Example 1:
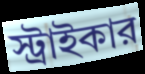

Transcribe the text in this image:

স্ট্রাইকার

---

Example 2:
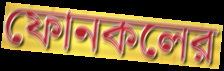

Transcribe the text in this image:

ফোনকলের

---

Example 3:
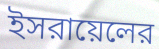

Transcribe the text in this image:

ইসরায়েলের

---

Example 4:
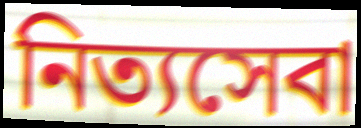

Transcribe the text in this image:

নিত্যসেবা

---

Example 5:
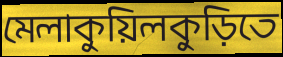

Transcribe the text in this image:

মেলাকুয়িলকুড়িতে